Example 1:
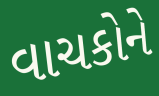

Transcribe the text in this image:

વાચકોને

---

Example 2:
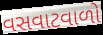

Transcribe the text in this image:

વસવાટવાળો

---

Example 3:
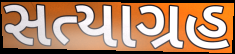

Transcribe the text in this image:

સત્યાગ્રહ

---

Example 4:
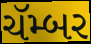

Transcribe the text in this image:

ચૅમ્બર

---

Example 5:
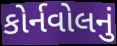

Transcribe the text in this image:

કોર્નવોલનું